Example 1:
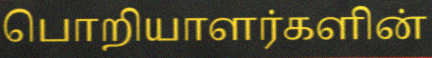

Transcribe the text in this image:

பொறியாளர்களின்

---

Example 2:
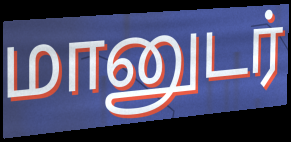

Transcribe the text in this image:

மானுடர்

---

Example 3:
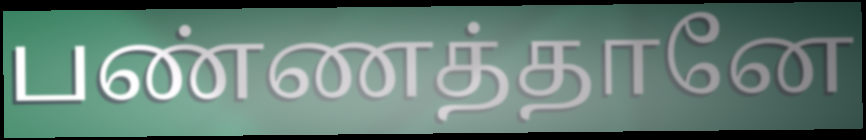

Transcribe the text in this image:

பண்ணத்தானே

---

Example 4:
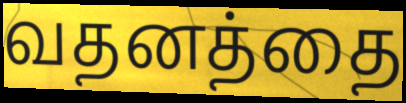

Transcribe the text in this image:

வதனத்தை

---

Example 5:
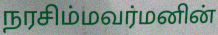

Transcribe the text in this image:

நரசிம்மவர்மனின்